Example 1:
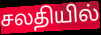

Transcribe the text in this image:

சலதியில்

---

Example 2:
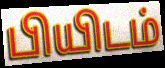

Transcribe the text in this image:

பியிடம்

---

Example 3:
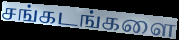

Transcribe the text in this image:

சங்கடங்களை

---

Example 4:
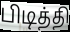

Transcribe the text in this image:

பிடித்தி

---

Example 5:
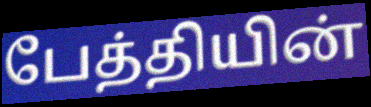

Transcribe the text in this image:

பேத்தியின்